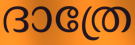
ദാത്രേ